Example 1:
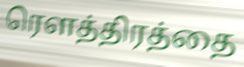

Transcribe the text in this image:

ரௌத்திரத்தை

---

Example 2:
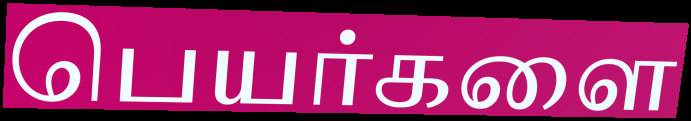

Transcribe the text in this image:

பெயர்களை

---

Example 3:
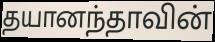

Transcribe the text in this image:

தயானந்தாவின்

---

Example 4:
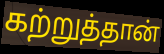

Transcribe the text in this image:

கற்றுத்தான்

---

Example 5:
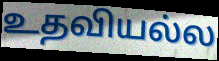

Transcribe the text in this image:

உதவியல்ல